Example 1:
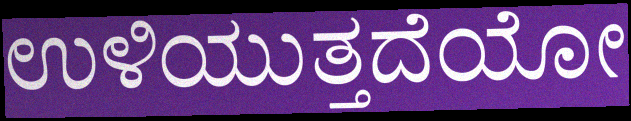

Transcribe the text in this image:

ಉಳಿಯುತ್ತದೆಯೋ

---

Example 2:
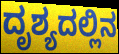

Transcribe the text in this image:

ದೃಶ್ಯದಲ್ಲಿನ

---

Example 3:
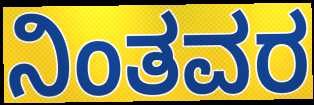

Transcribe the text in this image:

ನಿಂತವರ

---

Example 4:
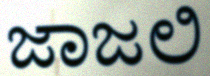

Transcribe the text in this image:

ಜಾಜಲಿ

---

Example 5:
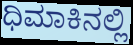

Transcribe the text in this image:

ಧಿಮಾಕಿನಲ್ಲಿ